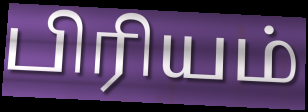
பிரியம்